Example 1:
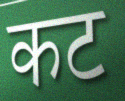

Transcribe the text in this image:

कट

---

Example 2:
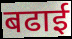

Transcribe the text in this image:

बढाई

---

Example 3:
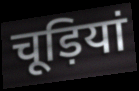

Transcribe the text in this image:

चूड़ियां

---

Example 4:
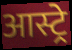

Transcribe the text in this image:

आस्ट्रे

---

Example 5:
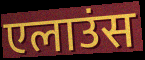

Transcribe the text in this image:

एलाउंस